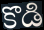
కొడి